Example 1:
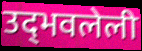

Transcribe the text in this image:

उद्‌भवलेली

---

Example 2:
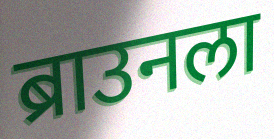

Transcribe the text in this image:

ब्राउनला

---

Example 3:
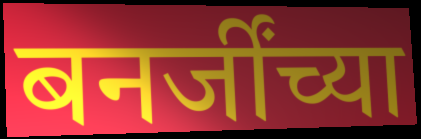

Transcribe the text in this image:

बनर्जींच्या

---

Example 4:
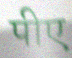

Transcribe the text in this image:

पीए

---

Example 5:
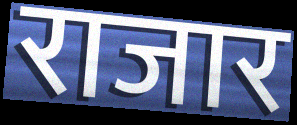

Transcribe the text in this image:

राजार